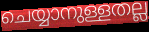
ചെയ്യാനുള്ളതല്ല